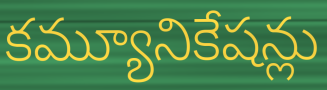
కమ్యూనికేషన్లు